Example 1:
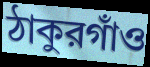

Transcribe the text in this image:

ঠাকুরগাঁও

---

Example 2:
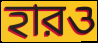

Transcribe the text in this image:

হারও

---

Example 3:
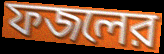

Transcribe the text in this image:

ফজলের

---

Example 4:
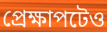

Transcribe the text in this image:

প্রেক্ষাপটেও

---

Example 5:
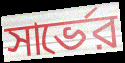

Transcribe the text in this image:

সার্ভের